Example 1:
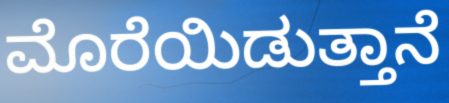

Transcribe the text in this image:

ಮೊರೆಯಿಡುತ್ತಾನೆ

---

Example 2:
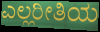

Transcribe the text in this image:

ಎಲ್ಲರೀತಿಯ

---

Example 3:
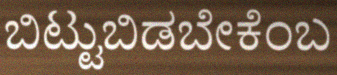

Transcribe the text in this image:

ಬಿಟ್ಟುಬಿಡಬೇಕೆಂಬ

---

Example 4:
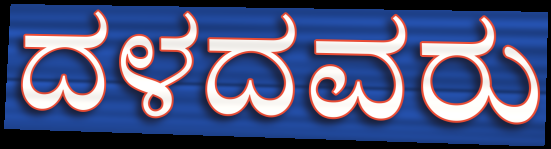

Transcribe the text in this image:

ದಳದವರು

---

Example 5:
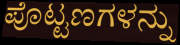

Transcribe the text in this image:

ಪೊಟ್ಟಣಗಳನ್ನು